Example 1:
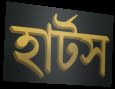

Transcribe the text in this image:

হার্টস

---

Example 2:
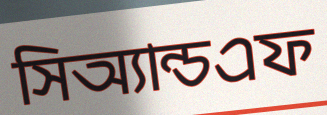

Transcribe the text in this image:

সিঅ্যান্ডএফ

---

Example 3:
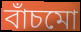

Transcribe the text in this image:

বাঁচমো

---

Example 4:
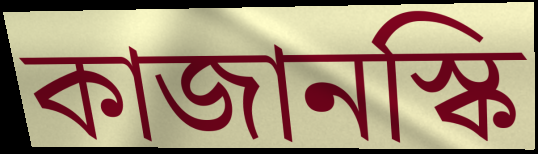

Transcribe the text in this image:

কাজানস্কি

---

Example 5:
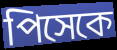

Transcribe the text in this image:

পিসেকে